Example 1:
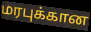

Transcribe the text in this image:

மரபுக்கான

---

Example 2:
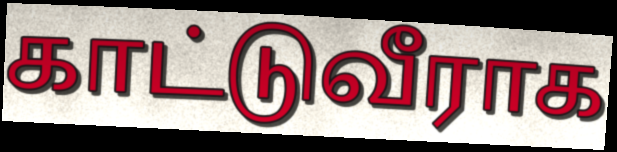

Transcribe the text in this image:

காட்டுவீராக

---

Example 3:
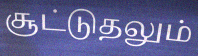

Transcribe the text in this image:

சூட்டுதலும்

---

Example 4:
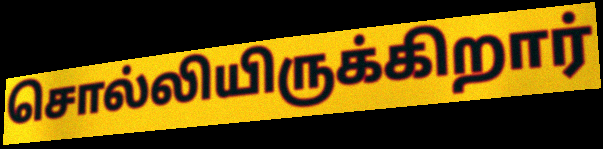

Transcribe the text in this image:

சொல்லியிருக்கிறார்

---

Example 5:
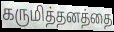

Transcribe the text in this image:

கருமித்தனத்தை